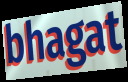
bhagat